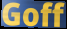
Goff